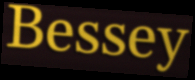
Bessey